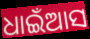
ଧାଇଁଆସ